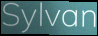
Sylvan